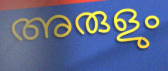
അരുളും